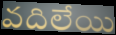
వదిలేయి